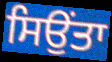
ਸਿਉਂਤਾ